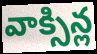
వాక్సిన్ల